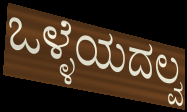
ಒಳ್ಳೆಯದಲ್ವ